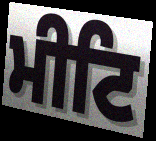
ਮੀਟਿ